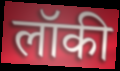
लॉकी